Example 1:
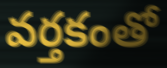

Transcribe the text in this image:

వర్తకంతో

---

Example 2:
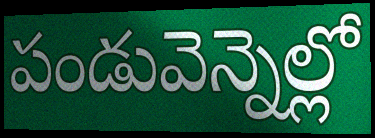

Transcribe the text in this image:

పండువెన్నెల్లో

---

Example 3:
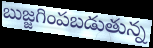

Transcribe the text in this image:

బుజ్జగింపబడుతున్న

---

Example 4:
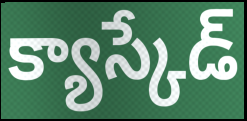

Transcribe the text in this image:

క్యాస్కేడ్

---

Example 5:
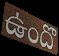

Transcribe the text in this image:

ఉందొ